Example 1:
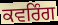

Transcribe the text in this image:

ਕਵਰਿੰਗ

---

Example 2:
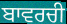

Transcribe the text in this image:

ਬਾਵਰਚੀ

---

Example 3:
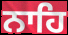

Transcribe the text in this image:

ਨਾਹਿ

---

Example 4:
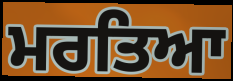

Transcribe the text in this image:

ਮਰਤਿਆ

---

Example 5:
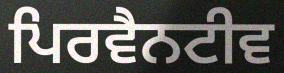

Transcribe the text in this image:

ਪਿਰਵੈਨਟੀਵ